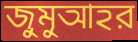
জুমুআহর